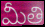
మీతి